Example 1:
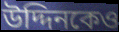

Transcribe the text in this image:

উদ্দিনকেও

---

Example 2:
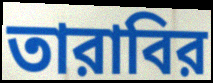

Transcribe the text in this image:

তারাবির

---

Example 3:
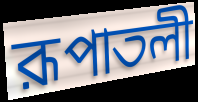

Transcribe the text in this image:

রূপাতলী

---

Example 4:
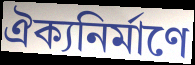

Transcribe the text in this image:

ঐক্যনির্মাণে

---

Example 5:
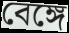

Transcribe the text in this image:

বেঙ্গে